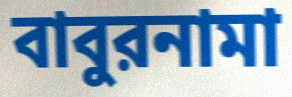
বাবুরনামা